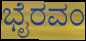
ಭೈರವಂ